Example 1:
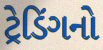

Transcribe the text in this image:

ટ્રેડિંગનો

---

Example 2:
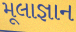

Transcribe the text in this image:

મૂલાજ્ઞાન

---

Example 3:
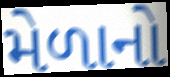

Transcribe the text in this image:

મેળાનો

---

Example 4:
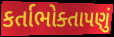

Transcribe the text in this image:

કર્તાભોક્તાપણું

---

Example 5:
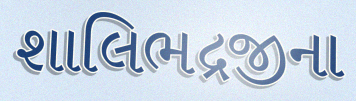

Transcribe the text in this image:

શાલિભદ્રજીના